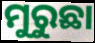
ମୁରୁଛା